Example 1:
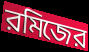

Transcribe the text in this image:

রমিজের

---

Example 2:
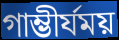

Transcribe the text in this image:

গাম্ভীর্যময়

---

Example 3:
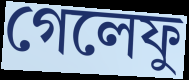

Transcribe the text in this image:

গেলেফু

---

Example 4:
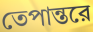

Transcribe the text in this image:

তেপান্তরে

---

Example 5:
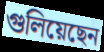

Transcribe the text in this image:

গুলিয়েছেন